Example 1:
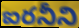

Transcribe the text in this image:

ఐరనీని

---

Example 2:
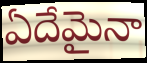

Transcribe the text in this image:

ఏదేమైనా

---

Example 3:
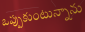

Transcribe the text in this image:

ఒప్పుకుంటున్నాను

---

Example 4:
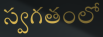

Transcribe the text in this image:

స్వగతంలో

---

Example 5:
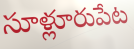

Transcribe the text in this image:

సూళ్లూరుపేట